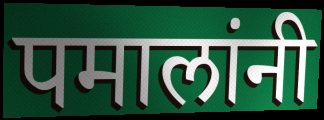
पमालांनी